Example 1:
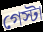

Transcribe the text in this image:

গেস্টা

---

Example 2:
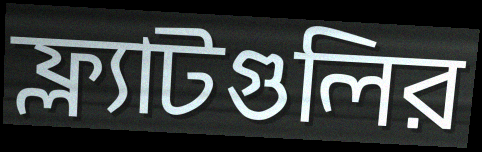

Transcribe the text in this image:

ফ্ল্যাটগুলির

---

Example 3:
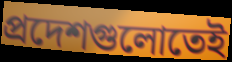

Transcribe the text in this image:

প্রদেশগুলোতেই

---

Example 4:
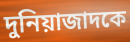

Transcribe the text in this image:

দুনিয়াজাদকে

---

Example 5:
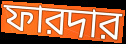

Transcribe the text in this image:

ফারদার